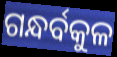
ଗନ୍ଧର୍ବକୁଳ